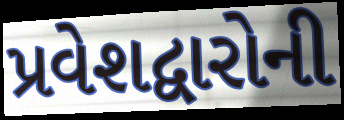
પ્રવેશદ્વારોની